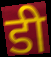
डी